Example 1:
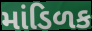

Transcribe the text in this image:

માંડિળક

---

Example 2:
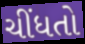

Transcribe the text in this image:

ચીંધતો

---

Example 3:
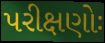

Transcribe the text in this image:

પરીક્ષણોઃ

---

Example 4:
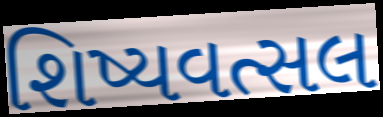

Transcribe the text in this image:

શિષ્યવત્સલ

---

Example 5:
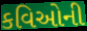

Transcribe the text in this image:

કવિઓની